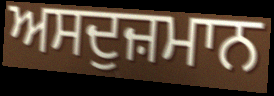
ਅਸਦੁਜ਼ਮਾਨ